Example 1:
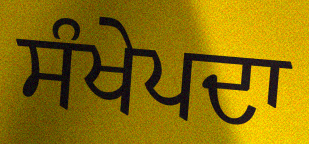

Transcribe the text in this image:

ਸੰਖੇਪਦਾ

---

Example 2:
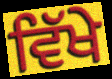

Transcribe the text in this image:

ਵਿੱਖੇ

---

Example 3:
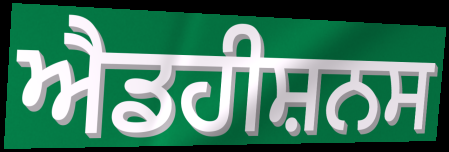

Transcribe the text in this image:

ਐਡਹੀਸ਼ਨਸ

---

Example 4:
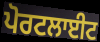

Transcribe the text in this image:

ਪੋਰਟਲਾਈਟ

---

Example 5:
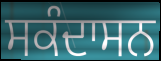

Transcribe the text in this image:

ਸਕੰਦਾਸਨ